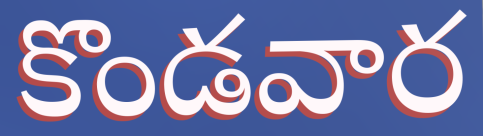
కొండవార